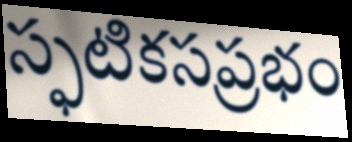
స్ఫటికసప్రభం